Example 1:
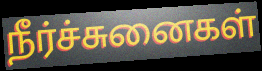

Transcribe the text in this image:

நீர்ச்சுனைகள்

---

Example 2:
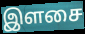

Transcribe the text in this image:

இளசை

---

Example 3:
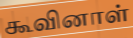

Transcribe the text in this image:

கூவினாள்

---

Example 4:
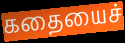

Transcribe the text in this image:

கதையைச்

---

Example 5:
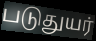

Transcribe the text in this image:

படுதுயர்